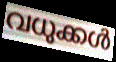
വധുക്കൾ